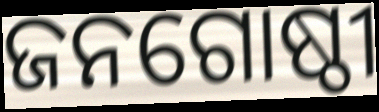
ଜନଗୋଷ୍ଠୀ